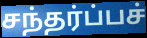
சந்தர்ப்பச்